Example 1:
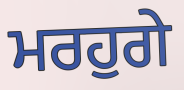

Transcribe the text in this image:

ਮਰਹੁਗੇ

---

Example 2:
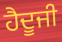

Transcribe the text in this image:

ਹੈਦੂਜੀ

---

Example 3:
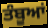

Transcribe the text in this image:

ਤੰਬੂਆਂ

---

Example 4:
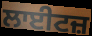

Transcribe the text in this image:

ਲਾਈਟਜ਼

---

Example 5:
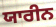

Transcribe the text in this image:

ਯਾਰੀਨ